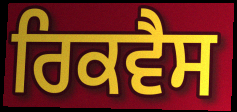
ਰਿਕਵੈਸ